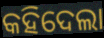
କହିଦେଲା